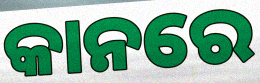
କାନରେ